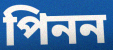
পিনন